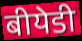
बीयेडी